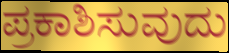
ಪ್ರಕಾಶಿಸುವುದು